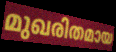
മുഖരിതമായ